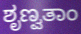
ಶೃಣ್ವತಾಂ